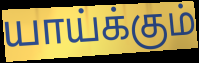
யாய்க்கும்